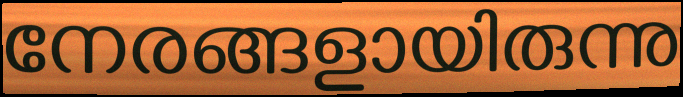
നേരങ്ങളായിരുന്നു